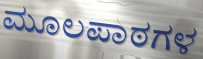
ಮೂಲಪಾಠಗಳ